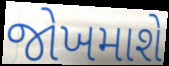
જોખમાશે